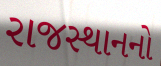
રાજસ્થાનનો